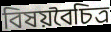
বিষয়বৈচিত্র